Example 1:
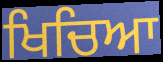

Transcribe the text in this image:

ਖਿਚਿਆ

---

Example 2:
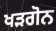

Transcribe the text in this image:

ਖੜਗੋਨ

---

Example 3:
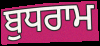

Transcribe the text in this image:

ਬੁਧਰਾਮ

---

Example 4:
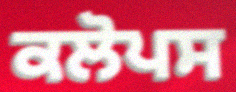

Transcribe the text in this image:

ਕਲੋਪਸ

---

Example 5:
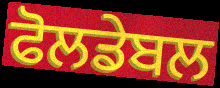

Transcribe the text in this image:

ਫੋਲਡੇਬਲ